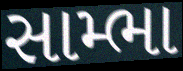
સામ્ભા